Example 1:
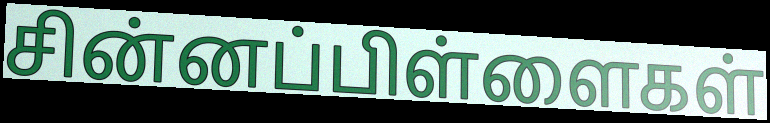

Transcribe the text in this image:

சின்னப்பிள்ளைகள்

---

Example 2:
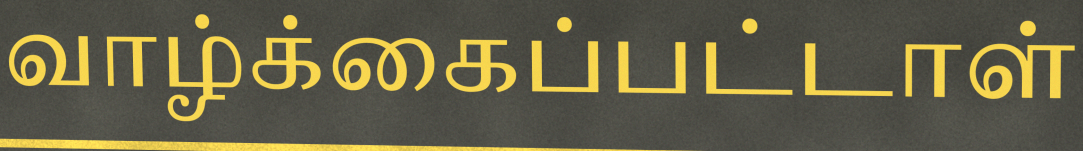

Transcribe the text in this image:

வாழ்க்கைப்பட்டாள்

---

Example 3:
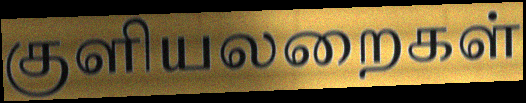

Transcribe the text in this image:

குளியலறைகள்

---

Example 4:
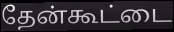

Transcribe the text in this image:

தேன்கூட்டை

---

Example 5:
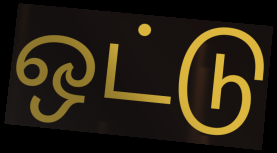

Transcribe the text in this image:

ஒட்டு